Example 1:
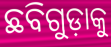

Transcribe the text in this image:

ଛବିଗୁଡ଼ାକୁ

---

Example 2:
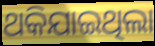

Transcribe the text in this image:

ଥକିଯାଇଥିଲା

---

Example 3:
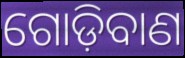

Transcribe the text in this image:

ଗୋଡ଼ିବାଣ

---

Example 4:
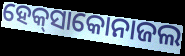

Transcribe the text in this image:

ହେକ୍‌ସାକୋନାଜଲ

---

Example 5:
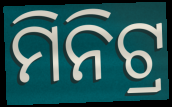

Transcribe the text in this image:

ମିନିଟ୍ର